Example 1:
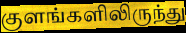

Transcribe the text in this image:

குளங்களிலிருந்து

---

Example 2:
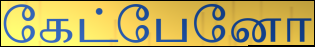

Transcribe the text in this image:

கேட்பேனோ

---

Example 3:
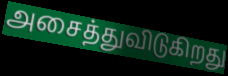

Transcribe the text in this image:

அசைத்துவிடுகிறது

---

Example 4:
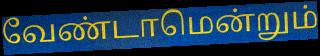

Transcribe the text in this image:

வேண்டாமென்றும்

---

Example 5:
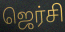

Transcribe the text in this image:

ஜெர்சி